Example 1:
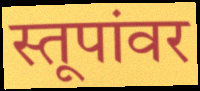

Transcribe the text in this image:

स्तूपांवर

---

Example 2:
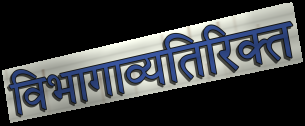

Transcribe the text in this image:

विभागाव्यतिरिक्त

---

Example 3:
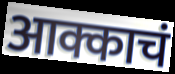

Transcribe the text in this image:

आक्काचं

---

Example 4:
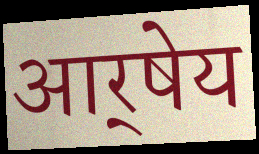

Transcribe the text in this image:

आर्षेय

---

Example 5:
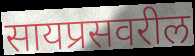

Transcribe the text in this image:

सायप्रसवरील